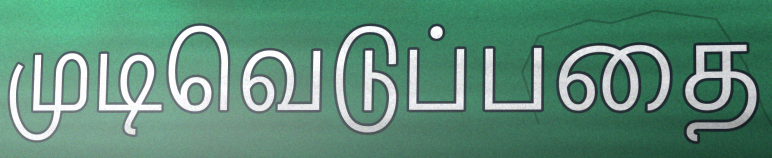
முடிவெடுப்பதை